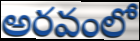
అరవంలో